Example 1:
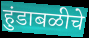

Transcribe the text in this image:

हुंडाबळीचे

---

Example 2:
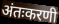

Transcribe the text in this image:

अंतःकरणी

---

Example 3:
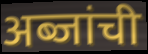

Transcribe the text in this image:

अब्जांची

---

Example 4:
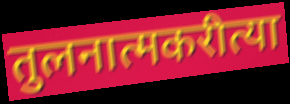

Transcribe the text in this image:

तुलनात्मकरीत्या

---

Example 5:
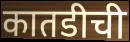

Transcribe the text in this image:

कातडीची